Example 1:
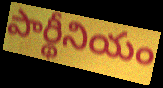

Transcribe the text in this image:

పార్థీనియం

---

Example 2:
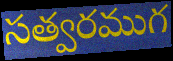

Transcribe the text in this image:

సత్వరముగ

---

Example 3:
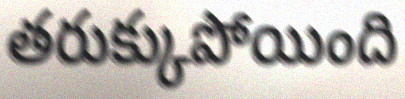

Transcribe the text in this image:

తరుక్కుపోయింది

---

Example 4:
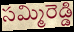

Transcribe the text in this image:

సమ్మిరెడ్డి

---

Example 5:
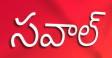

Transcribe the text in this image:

సవాల్